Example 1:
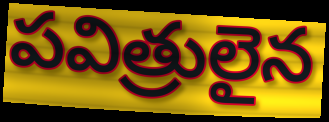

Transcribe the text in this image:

పవిత్రులైన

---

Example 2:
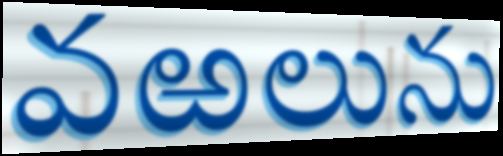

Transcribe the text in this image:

వఱలును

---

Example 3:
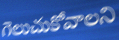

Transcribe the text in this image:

గెలుచుకోవాలని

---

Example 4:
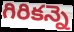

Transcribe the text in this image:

గిరికన్నె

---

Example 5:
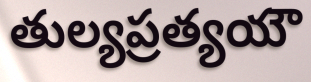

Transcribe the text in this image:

తుల్యప్రత్యయౌ